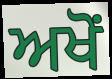
ਅਖੋਂ